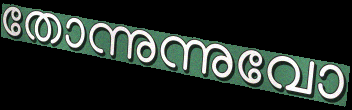
തോന്നുന്നുവോ